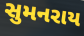
સુમનરાય